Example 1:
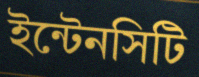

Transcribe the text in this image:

ইন্টেনসিটি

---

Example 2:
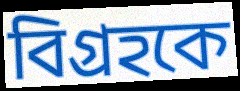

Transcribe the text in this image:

বিগ্রহকে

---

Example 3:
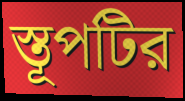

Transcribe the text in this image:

স্তূপটির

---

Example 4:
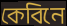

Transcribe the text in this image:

কেবিনে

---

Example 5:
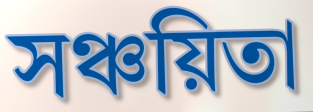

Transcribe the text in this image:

সঞ্চয়িতা